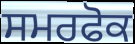
ਸਮਰਫੋਕ